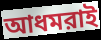
আধমরাই